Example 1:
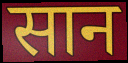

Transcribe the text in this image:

सान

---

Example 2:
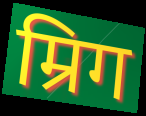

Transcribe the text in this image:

म्रिग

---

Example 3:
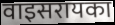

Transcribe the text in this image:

वाइसरायका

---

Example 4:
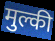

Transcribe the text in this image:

मुल्की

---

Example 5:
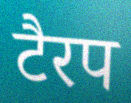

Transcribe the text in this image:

टैरप